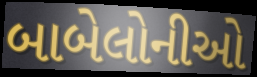
બાબેલોનીઓ